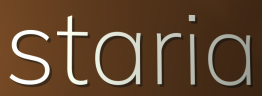
staria